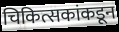
चिकित्सकांकडून